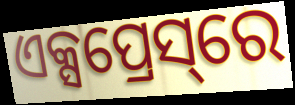
ଏକ୍ସପ୍ରେସ୍‌ରେ